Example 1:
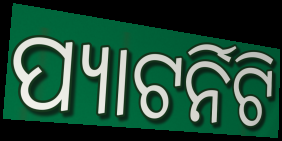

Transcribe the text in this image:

ପ୍ୟାଟର୍ନିଟି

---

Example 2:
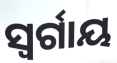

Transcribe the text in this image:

ସ୍ବର୍ଗାୟ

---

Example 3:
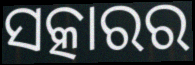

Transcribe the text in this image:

ସତ୍କାରର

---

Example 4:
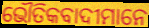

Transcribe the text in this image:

ଭୌତିକବାଦୀମାନେ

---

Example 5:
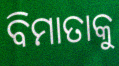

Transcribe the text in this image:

ବିମାତାକୁ